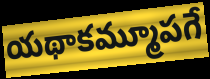
యథాకమ్మూపగే